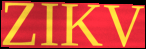
ZIKV